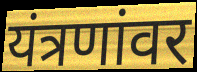
यंत्रणांवर